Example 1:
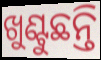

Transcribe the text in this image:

ଖୁଣ୍ଟୁଛନ୍ତି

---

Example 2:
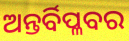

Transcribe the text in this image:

ଅନ୍ତର୍ବିପ୍ଳବର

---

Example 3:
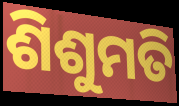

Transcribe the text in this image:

ଶିଶୁମତି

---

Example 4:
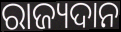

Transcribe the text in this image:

ରାଜ୍ୟଦାନ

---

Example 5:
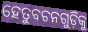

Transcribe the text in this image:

ହେତୁବଚନଗୁଡ଼ିକୁ